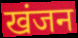
खंजन